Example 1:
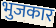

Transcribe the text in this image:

भुजकार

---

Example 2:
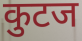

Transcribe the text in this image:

कुटज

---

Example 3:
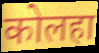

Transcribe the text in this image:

कोलहा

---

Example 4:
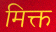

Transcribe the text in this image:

मिक्त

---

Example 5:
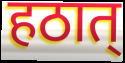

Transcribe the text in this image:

हठात्